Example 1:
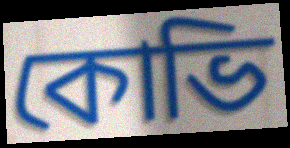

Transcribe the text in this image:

কোভি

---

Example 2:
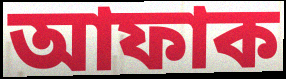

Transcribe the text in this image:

আফাক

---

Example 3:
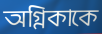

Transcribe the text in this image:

অগ্নিকাকে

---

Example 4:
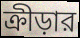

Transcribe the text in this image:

ক্রীড়ার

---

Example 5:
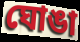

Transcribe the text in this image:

ঘোঙা